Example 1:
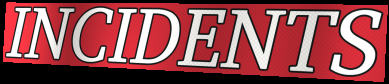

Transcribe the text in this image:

INCIDENTS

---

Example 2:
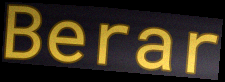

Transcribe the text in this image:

Berar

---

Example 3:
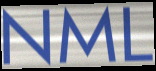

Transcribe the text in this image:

NML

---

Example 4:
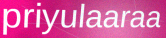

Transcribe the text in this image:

priyulaaraa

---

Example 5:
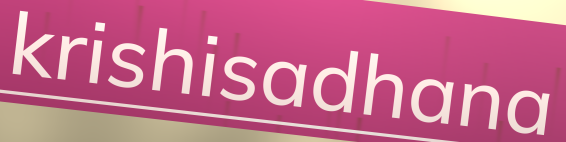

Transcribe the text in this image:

krishisadhana